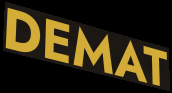
DEMAT